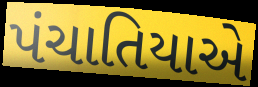
પંચાતિયાએ